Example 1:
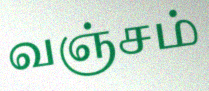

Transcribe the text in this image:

வஞ்சம்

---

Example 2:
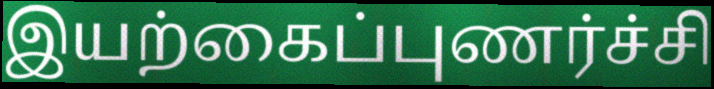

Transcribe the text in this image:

இயற்கைப்புணர்ச்சி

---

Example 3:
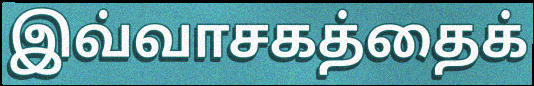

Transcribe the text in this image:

இவ்வாசகத்தைக்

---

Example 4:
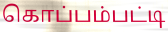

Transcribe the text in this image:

கொப்பம்பட்டி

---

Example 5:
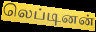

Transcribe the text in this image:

லெப்டினன்